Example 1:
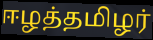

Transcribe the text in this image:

ஈழத்தமிழர்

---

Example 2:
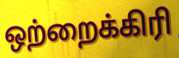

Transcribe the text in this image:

ஒற்றைக்கிரி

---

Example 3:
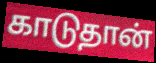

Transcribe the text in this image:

காடுதான்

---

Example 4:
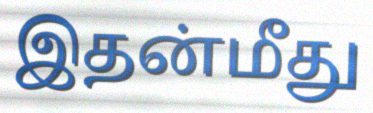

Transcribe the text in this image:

இதன்மீது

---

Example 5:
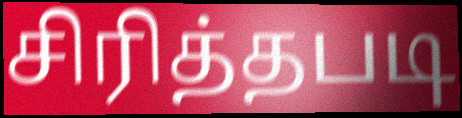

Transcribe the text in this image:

சிரித்தபடி